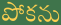
పోకను